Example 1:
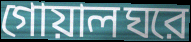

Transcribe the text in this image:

গোয়ালঘরে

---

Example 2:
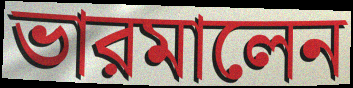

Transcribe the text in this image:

ভারমালেন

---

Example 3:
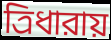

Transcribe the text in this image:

ত্রিধারায়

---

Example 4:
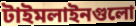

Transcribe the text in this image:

টাইমলাইনগুলো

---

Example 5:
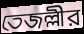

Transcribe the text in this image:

তেজল্লীর